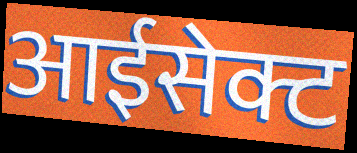
आईसेक्ट